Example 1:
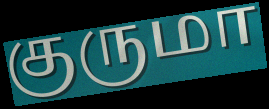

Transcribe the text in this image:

குருமா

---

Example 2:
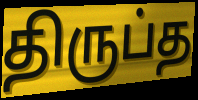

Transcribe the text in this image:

திருப்த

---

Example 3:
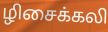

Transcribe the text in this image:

ழிசைக்கலி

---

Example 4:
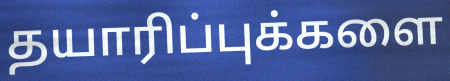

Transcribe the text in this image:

தயாரிப்புக்களை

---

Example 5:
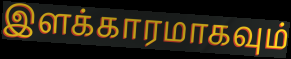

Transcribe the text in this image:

இளக்காரமாகவும்